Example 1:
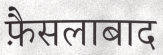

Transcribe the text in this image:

फ़ैसलाबाद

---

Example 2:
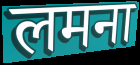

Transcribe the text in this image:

लमना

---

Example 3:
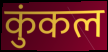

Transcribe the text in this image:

कुंकल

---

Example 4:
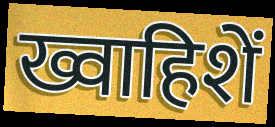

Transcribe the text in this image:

ख्वाहिशें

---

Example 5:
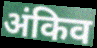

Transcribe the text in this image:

अंकिव